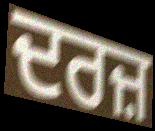
ਦਰਜ਼